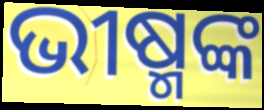
ଭୀଷ୍ମଙ୍କ